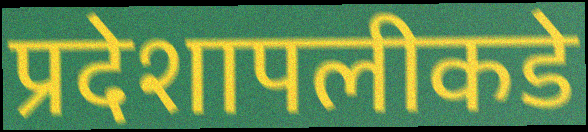
प्रदेशापलीकडे